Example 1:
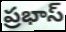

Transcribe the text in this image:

ప్రభాస్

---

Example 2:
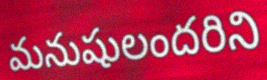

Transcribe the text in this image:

మనుషులందరిని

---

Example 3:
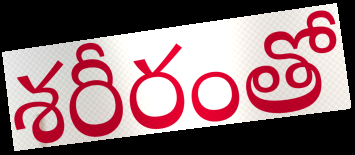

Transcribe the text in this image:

శరీరంతో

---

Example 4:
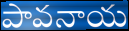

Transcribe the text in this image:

పావనాయ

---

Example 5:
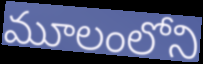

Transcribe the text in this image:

మూలంలోని